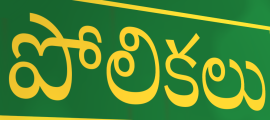
పోలికలు